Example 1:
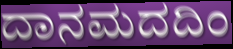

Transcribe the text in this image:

ದಾನಮದದಿಂ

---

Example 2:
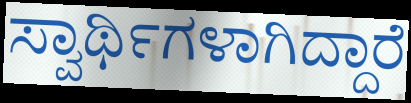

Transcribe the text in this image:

ಸ್ವಾರ್ಥಿಗಳಾಗಿದ್ದಾರೆ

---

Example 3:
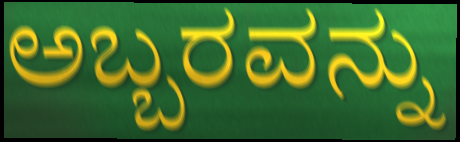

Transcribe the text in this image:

ಅಬ್ಬರವನ್ನು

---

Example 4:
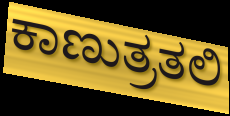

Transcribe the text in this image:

ಕಾಣುತ್ರತಲಿ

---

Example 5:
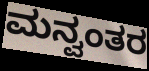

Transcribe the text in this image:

ಮನ್ವಂತರ